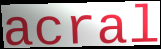
acral